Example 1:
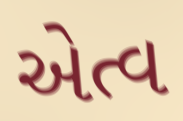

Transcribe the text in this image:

એત્વ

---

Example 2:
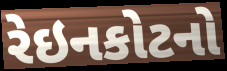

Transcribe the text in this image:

રેઇનકોટનો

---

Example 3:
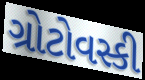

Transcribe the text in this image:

ગ્રોટોવસ્કી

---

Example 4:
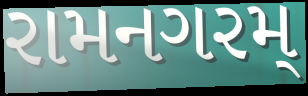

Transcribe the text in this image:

રામનગરમ્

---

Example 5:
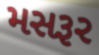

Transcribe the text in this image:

મસરૂર